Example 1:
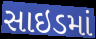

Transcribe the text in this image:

સાઇડમાં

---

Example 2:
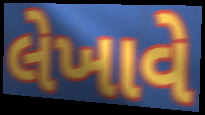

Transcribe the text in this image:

લેખાવે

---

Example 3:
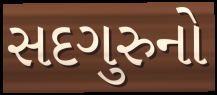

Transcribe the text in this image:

સદગુરુનો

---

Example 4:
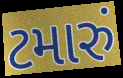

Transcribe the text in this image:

ટમારું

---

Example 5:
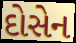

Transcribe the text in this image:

દોસેન